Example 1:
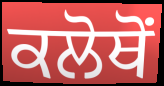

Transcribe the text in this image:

ਕਲੋਥੋਂ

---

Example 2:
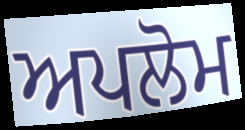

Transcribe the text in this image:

ਅਪਲੋਮ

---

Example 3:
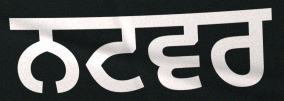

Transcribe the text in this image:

ਨਟਵਰ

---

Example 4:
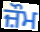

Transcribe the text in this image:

ਜ਼ੌਮ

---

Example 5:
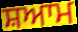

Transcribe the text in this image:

ਸ਼ਆਮ